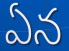
ఏన